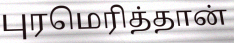
புரமெரித்தான்